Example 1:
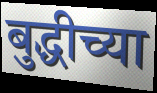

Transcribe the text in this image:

बुद्धीच्या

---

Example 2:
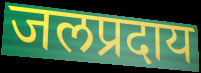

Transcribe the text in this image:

जलप्रदाय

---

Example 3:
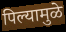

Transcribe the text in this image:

पिल्यामुळे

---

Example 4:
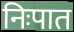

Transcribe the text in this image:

निःपात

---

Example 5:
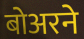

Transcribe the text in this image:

बोअरने